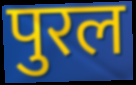
पुरल